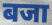
बजा